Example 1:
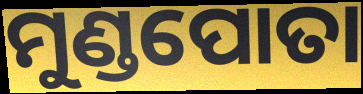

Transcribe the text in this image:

ମୁଣ୍ଡପୋତା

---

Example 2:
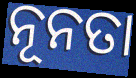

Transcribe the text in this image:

ନୂନତା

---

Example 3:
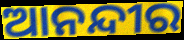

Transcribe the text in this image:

ଆନନ୍ଦୀର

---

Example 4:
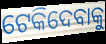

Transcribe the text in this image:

ଟେକିଦେବାକୁ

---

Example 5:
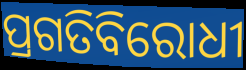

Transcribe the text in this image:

ପ୍ରଗତିବିରୋଧୀ